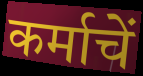
कर्माचें